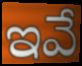
ఇవే